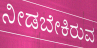
ನೀಡಬೇಕಿರುವ